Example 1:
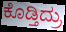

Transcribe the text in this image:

ಕೊಡ್ತಿದ್ರು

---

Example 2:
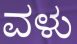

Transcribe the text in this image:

ವಳು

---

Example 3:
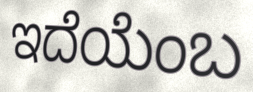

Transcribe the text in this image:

ಇದೆಯೆಂಬ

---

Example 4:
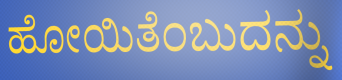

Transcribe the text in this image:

ಹೋಯಿತೆಂಬುದನ್ನು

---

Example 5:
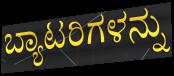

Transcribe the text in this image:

ಬ್ಯಾಟರಿಗಳನ್ನು